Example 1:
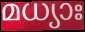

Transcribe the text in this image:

മധ്യാഃ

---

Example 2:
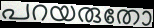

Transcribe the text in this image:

പറയരുതോ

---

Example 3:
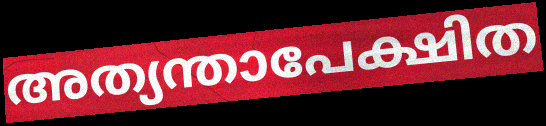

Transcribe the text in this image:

അത്യന്താപേക്ഷിത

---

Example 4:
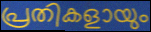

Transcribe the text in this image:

പ്രതികളായും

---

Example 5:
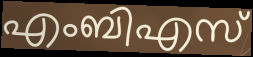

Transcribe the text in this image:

എംബിഎസ്